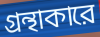
গ্রন্থাকারে